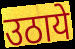
उठाये